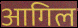
आगिल